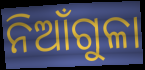
ନିଆଁଗୁଳା